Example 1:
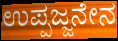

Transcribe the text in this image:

ಉಪ್ಪಜ್ಜನೇನ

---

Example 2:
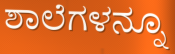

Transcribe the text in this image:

ಶಾಲೆಗಳನ್ನೂ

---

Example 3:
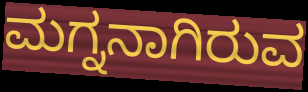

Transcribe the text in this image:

ಮಗ್ನನಾಗಿರುವ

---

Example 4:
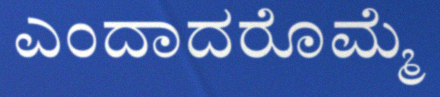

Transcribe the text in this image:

ಎಂದಾದರೊಮ್ಮೆ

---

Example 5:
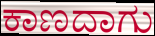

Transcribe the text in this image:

ಕಾಣದಾಗು